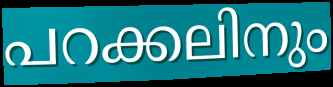
പറക്കലിനും